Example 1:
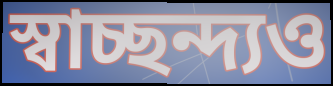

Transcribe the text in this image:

স্বাচ্ছন্দ্যও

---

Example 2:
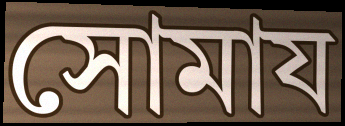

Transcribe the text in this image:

সোমায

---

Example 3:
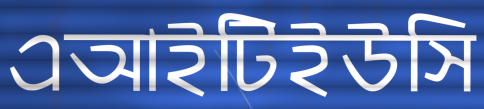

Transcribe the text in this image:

এআইটিইউসি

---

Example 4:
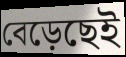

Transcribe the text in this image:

বেড়েছেই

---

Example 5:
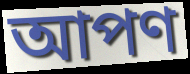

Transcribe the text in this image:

আপণ